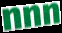
nnn